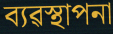
ব্যৱস্থাপনা